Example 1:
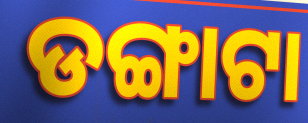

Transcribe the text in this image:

ଡଙ୍ଗାଟା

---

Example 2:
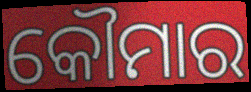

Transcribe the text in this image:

କୌମାର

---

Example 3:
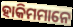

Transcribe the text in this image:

ହାକିମମାନେ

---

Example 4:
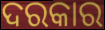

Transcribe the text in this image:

ଦରକାର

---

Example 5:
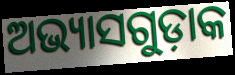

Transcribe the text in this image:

ଅଭ୍ୟାସଗୁଡ଼ାକ